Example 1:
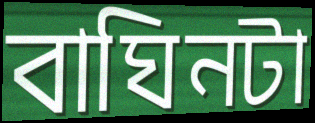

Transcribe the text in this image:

বাঘিনটা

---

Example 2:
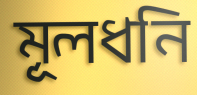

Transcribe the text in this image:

মূলধনি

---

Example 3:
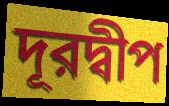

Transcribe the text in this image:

দূরদ্বীপ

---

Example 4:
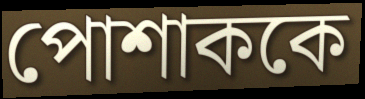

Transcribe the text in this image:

পোশাককে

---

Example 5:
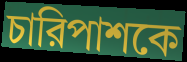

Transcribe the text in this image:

চারিপাশকে